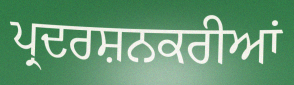
ਪ੍ਰਦਰਸ਼ਨਕਰੀਆਂ